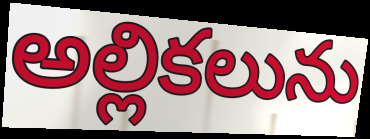
అల్లికలును